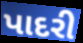
પાદરી